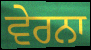
ਵੇਰਨਾ